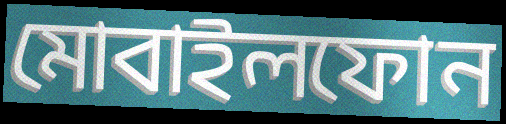
মোবাইলফোন